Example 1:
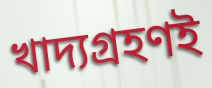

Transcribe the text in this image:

খাদ্যগ্রহণই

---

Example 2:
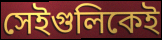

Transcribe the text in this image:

সেইগুলিকেই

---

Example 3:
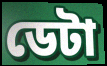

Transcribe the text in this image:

ডেটা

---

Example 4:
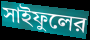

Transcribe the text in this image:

সাইফুলের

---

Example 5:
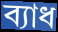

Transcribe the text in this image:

ব্যাধ